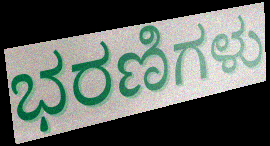
ಭರಣಿಗಳು